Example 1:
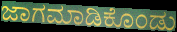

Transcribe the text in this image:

ಜಾಗಮಾಡಿಕೊಂಡು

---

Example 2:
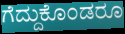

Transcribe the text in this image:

ಗೆದ್ದುಕೊಂಡರೂ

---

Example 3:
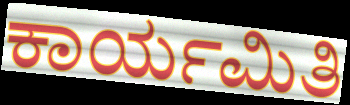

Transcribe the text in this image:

ಕಾರ್ಯಮಿತಿ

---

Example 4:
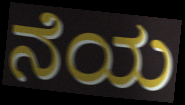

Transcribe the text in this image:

ನೆಯ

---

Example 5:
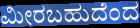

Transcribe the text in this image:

ಮೀರಬಹುದೆಂದ